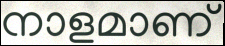
നാളമാണ്